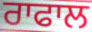
ਰਾਫਾਲ